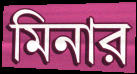
মিনার